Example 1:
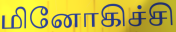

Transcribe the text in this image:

மினோகிச்சி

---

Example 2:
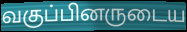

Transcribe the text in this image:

வகுப்பினருடைய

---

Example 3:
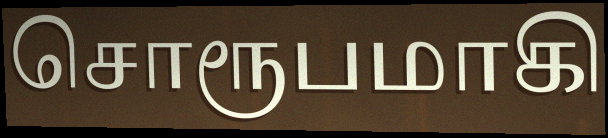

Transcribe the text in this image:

சொரூபமாகி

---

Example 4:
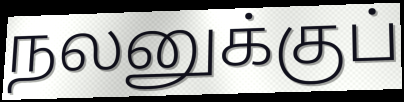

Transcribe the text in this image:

நலனுக்குப்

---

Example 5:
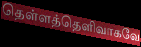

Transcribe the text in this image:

தெள்ளத்தெளிவாகவே